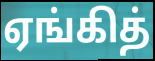
ஏங்கித்